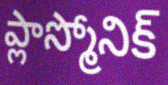
ప్లాస్మోనిక్